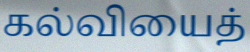
கல்வியைத்